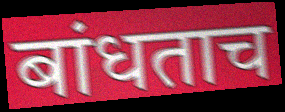
बांधताच